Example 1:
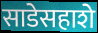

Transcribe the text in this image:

साडेसहाशे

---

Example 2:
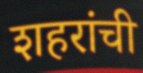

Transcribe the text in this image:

शहरांची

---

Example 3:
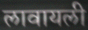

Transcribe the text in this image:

लावायली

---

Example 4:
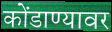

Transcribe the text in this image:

कोंडाण्यावर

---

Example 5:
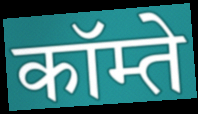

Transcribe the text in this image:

कॉम्ते